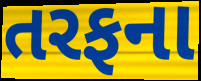
તરફના